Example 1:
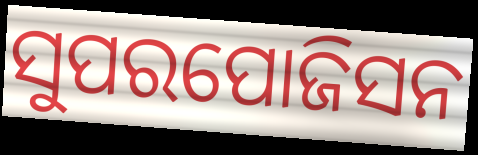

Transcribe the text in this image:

ସୁପରପୋଜିସନ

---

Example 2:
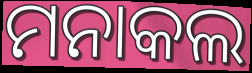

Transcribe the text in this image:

ମନାକଲ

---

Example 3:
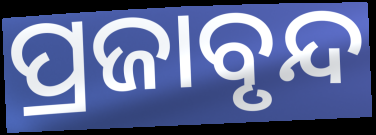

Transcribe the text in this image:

ପ୍ରଜାବୃନ୍ଦ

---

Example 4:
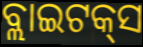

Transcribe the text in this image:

ବ୍ଲାଇଟକ୍‌ସ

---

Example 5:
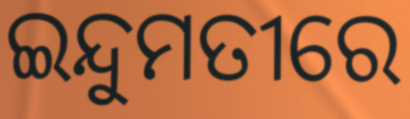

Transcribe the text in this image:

ଇନ୍ଦୁମତୀରେ